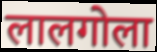
लालगोला